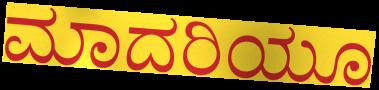
ಮಾದರಿಯೂ